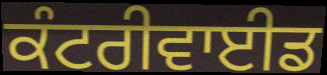
ਕੰਟਰੀਵਾਈਡ